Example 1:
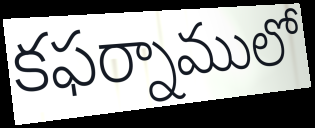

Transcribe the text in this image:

కఫర్నాములో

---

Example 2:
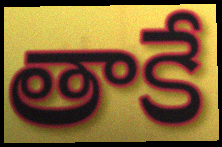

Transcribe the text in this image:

తాకే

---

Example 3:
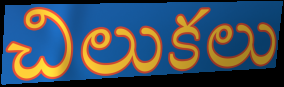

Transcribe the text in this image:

చిలుకలు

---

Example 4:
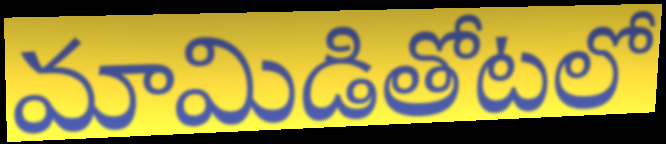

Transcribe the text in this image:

మామిడితోటలో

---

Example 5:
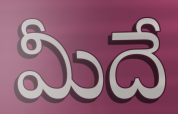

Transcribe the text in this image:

మీదే